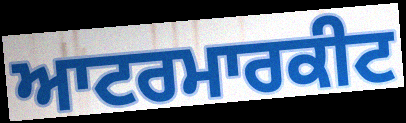
ਆਟਰਮਾਰਕੀਟ